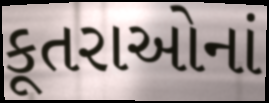
કૂતરાઓનાં